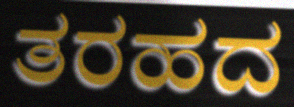
ತರಹದ